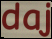
daj